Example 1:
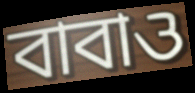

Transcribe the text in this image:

বাবাও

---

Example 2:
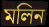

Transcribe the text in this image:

মলিন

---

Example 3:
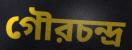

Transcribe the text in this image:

গৌরচন্দ্র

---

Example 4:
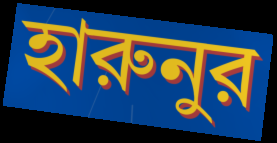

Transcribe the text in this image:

হারুনুর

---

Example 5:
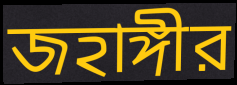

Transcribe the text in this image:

জহাঙ্গীর